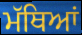
ਮੱਥਿਆਂ